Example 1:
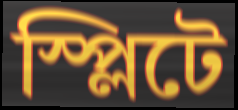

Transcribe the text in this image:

স্প্লিটে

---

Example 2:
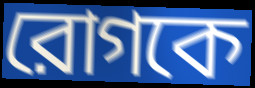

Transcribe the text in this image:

রোগকে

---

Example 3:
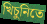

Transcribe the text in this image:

খিচুনিতে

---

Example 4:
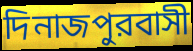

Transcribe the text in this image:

দিনাজপুরবাসী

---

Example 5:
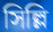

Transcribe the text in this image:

সিল্লি